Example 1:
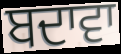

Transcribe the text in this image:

ਬਦਾਵਾ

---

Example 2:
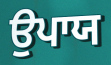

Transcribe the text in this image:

ਉਪਾਯ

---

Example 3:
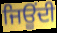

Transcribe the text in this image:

ਜਿਊਂਦੀ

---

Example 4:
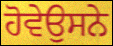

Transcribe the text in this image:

ਹੋਵੇਉਸਨੇ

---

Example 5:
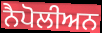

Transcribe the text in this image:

ਨੈਪੋਲੀਅਨ